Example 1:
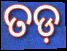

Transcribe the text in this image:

ତଡ଼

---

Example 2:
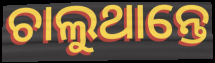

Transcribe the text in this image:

ଚାଲୁଥାନ୍ତେ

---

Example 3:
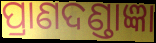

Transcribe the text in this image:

ପ୍ରାଣଦଣ୍ଡାଜ୍ଞା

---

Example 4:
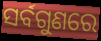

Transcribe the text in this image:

ସର୍ବଗୁଣରେ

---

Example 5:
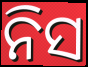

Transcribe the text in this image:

ନିସ